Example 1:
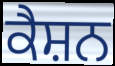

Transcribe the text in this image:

ਕੈਸ਼ਨ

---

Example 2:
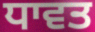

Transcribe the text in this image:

ਧਾਵਤ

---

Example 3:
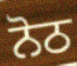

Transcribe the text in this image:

ਨੋਠ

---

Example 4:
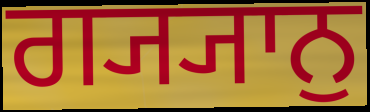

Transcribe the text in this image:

ਗ੍ਯ੍ਯਾਨੁ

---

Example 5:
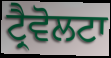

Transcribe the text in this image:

ਟ੍ਰੈਵੋਲਟਾ